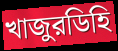
খাজুরডিহি